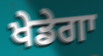
ਖੇਡੇਗਾ